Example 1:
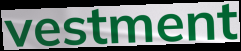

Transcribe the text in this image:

vestment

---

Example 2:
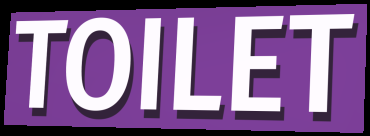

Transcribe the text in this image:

TOILET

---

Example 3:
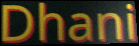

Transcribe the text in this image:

Dhani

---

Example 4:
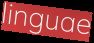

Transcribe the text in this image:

linguae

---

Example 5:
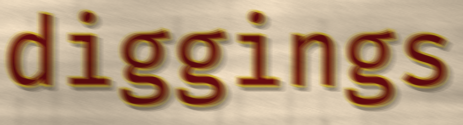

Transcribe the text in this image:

diggings